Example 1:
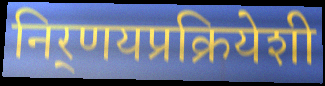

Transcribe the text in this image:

निर्णयप्रक्रियेशी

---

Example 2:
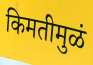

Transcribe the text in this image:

किमतीमुळं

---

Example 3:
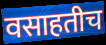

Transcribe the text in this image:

वसाहतीच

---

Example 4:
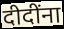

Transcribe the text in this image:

दीदींना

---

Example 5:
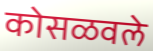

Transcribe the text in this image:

कोसळवले